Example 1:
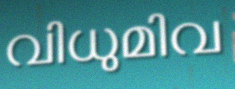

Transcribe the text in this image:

വിധുമിവ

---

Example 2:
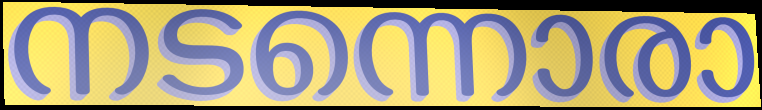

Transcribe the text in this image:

നടന്നൊരാ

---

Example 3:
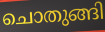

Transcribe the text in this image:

ചൊതുങ്ങി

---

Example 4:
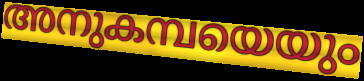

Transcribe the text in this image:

അനുകമ്പയെയും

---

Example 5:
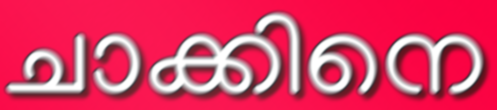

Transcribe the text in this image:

ചാക്കിനെ